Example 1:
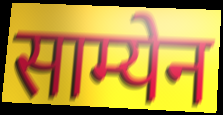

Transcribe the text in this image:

साम्येन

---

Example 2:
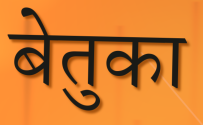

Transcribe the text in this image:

बेतुका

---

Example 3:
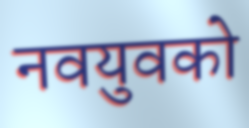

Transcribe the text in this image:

नवयुवको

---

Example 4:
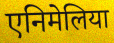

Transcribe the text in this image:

एनिमेलिया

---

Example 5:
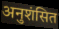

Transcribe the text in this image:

अनुशंसित